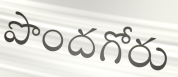
పొందగోరు